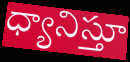
ధ్యానిస్తూ